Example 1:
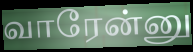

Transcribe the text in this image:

வாரேன்னு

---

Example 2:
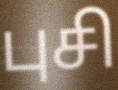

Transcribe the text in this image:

புசி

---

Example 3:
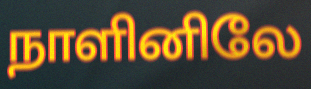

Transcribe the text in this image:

நாளினிலே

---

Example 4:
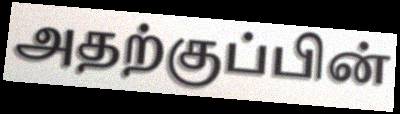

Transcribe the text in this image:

அதற்குப்பின்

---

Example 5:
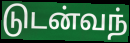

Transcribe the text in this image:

டுடன்வந்